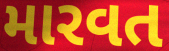
મારવત